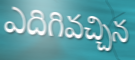
ఎదిగివచ్చిన